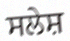
ਸਲੇਸ਼